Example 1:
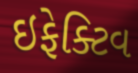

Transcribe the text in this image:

ઇફેક્ટિવ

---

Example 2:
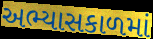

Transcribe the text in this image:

અભ્યાસકાળમાં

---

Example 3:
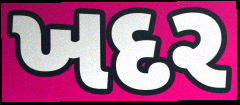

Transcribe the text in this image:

ખદર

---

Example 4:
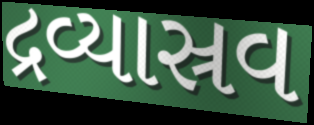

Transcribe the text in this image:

દ્રવ્યાસ્રવ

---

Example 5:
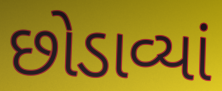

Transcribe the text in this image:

છોડાવ્યાં